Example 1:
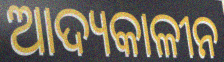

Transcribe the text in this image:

ଆଦ୍ୟକାଳୀନ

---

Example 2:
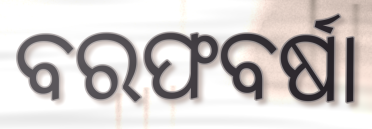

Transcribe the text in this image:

ବରଫବର୍ଷା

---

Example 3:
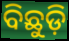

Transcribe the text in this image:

ବିଛୁଡ଼ି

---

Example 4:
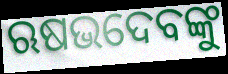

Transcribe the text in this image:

ଋଷଭଦେବଙ୍କୁ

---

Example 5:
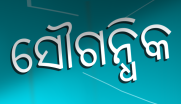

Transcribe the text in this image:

ସୌଗନ୍ଧିକ